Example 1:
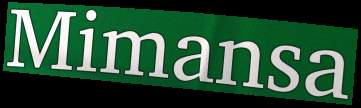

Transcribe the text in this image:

Mimansa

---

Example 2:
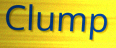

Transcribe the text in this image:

Clump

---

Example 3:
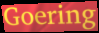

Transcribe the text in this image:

Goering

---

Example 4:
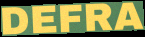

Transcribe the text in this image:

DEFRA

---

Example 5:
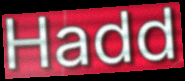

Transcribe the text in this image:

Hadd